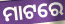
ମାଟରେ